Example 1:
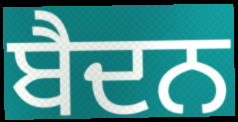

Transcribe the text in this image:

ਬੈਦਨ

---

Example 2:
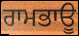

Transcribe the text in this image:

ਰਾਮਭਾਊ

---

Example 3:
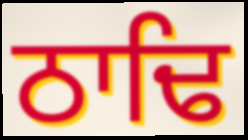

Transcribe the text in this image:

ਠਾਢਿ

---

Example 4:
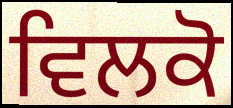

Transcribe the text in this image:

ਵਿਲਕੋ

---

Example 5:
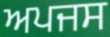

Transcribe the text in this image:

ਅਪਜਸ